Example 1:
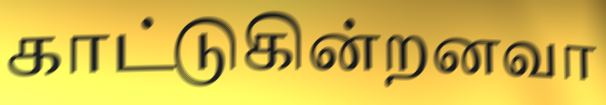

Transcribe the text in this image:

காட்டுகின்றனவா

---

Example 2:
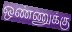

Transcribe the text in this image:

ஒண்ணுக்கு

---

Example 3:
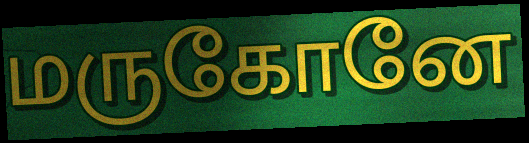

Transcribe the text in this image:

மருகோனே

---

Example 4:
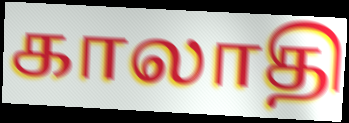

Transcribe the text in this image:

காலாதி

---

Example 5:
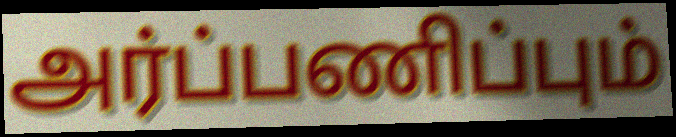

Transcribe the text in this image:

அர்ப்பணிப்பும்